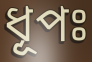
ধূপঃ